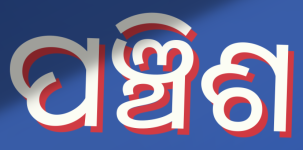
ପଞ୍ଚିଶ